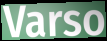
Varso